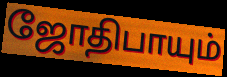
ஜோதிபாயும்